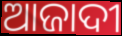
ଆଜାଦୀ